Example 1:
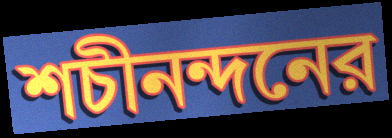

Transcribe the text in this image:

শচীনন্দনের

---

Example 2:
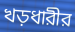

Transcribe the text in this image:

খড়ধারীর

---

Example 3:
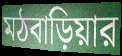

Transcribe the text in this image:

মঠবাড়িয়ার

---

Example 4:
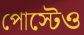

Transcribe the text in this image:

পোস্টেও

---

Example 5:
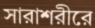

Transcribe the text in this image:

সারাশরীরে